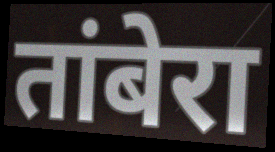
तांबेरा